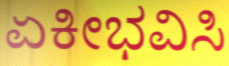
ಏಕೀಭವಿಸಿ